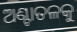
ଅଣ୍ଟାତଳକୁ